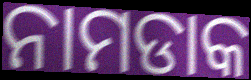
ନାମଡାକ